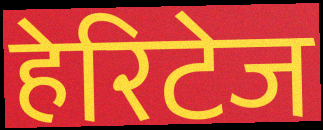
हेरिटेज